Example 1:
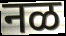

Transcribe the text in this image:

नळ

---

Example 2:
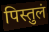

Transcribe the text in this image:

पिस्तुलं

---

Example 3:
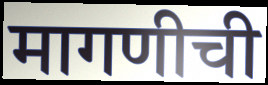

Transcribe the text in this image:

मागणीची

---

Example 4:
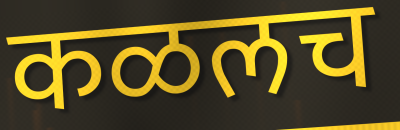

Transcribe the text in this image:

कळलच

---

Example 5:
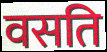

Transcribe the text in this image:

वसति